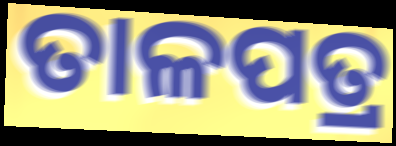
ତାଳପତ୍ର